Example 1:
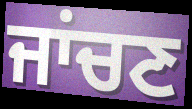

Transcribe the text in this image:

ਜਾਂਚਣ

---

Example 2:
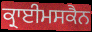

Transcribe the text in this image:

ਕ੍ਰਾਈਮਸਕੈਨ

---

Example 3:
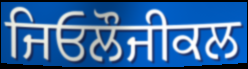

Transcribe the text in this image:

ਜਿਓਲੌਜੀਕਲ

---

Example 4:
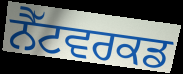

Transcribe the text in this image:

ਨੈੱਟਵਰਕਡ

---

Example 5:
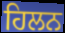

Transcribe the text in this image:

ਹਿਲਨ